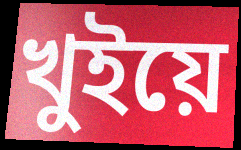
খুইয়ে